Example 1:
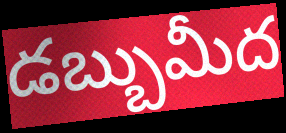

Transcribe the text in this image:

డబ్బుమీద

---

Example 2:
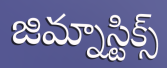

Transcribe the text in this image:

జిమ్నాస్టిక్స్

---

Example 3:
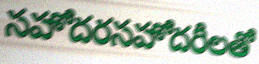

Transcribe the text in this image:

సహోదరసహోదరీలతో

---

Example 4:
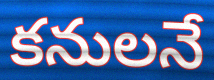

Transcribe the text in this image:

కనులనే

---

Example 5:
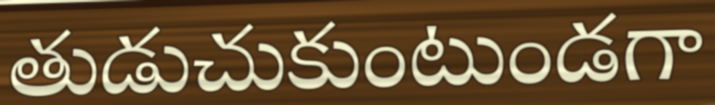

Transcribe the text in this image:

తుడుచుకుంటుండగా